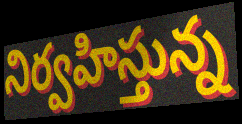
నిర్వహిస్తున్న